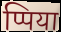
प्पिया